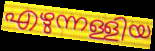
എഴുന്നള്ളിയ